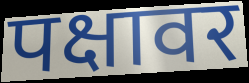
पक्षावर